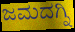
ಜಮದಗ್ನಿ